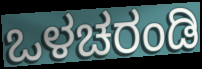
ಒಳಚರಂಡಿ